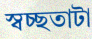
স্বচ্ছতাটা